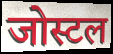
जोस्टल